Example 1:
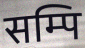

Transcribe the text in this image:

सम्पि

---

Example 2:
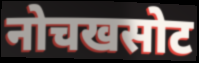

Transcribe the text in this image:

नोचखसोट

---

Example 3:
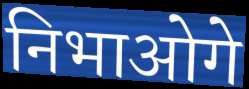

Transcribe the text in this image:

निभाओगे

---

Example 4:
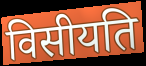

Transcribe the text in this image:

विसीयति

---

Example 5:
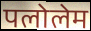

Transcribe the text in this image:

पलोलेम